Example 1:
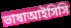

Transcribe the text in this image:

ভাষাআইসিসি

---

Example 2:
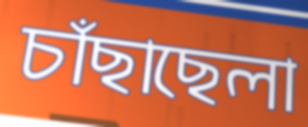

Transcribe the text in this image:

চাঁছাছেলা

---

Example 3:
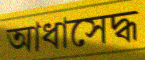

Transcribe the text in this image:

আধাসেদ্ধ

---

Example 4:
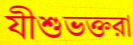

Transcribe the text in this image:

যীশুভক্তরা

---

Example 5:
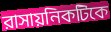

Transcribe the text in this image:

রাসায়নিকটিকে